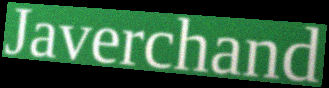
Javerchand